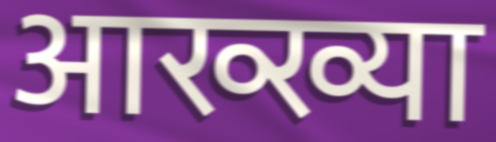
आख्ख्या